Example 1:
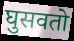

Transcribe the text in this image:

घुसवतो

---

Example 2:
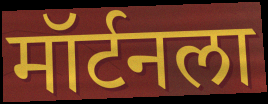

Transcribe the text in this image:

मॉर्टनला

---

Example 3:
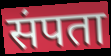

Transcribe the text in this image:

संपता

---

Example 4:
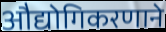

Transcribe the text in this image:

औद्योगिकरणाने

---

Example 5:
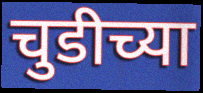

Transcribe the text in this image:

चुडीच्या